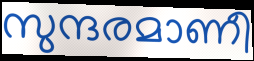
സുന്ദരമാണീ